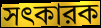
সৎকারক